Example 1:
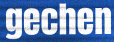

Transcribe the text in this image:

gechen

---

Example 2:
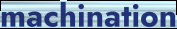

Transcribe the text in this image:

machination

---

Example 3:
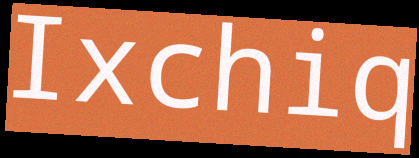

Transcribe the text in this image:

Ixchiq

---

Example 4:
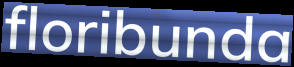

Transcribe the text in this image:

floribunda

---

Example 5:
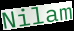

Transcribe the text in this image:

Nilam